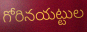
గోరినయట్టుల